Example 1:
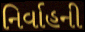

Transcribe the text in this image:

નિર્વાહની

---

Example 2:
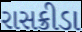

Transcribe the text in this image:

રાસક્રીડા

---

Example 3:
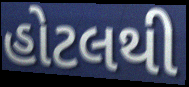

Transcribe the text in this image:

હોટલથી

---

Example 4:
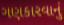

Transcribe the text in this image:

ગણકારવાનું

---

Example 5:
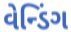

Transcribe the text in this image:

વેન્ડિંગ